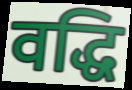
वद्धि